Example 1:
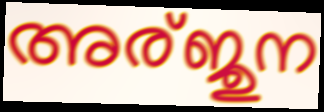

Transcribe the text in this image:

അര്ജുന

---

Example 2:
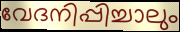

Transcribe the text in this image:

വേദനിപ്പിച്ചാലും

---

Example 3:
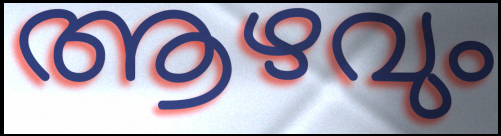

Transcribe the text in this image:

ആഴവും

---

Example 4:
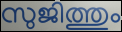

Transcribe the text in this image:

സുജിത്തും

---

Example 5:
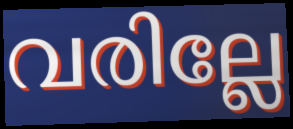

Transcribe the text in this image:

വരില്ലേ